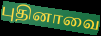
புதினாவை